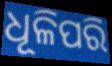
ଧୂଳିପରି